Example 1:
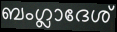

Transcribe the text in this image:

ബംഗ്ലാദേശ്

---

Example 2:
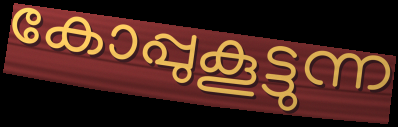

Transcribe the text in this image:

കോപ്പുകൂട്ടുന്ന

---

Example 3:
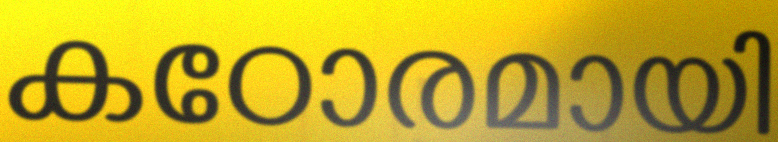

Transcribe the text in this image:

കഠോരമായി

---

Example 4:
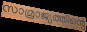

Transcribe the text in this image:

സാമ്രാജ്യത്തിന്റെ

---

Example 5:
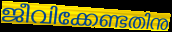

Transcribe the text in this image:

ജീവിക്കേണ്ടതിനു